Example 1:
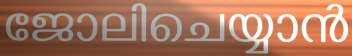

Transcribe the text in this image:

ജോലിചെയ്യാൻ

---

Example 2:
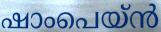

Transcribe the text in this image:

ഷാംപെയ്ൻ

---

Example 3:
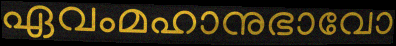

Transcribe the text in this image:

ഏവംമഹാനുഭാവോ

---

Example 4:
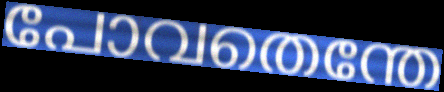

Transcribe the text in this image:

പോവതെന്തേ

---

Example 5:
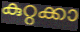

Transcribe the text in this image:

കുറ്റക്കാ